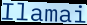
Ilamai